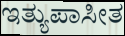
ಇತ್ಯುಪಾಸೀತ